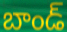
బాండ్